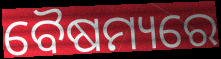
ବୈଷମ୍ୟରେ